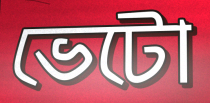
ভেটো